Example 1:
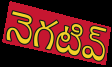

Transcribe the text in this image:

నెగటివ్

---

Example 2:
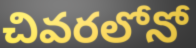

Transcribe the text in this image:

చివరలోనో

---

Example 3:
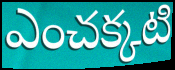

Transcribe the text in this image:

ఎంచక్కటి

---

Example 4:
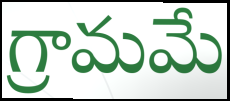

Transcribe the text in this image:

గ్రామమే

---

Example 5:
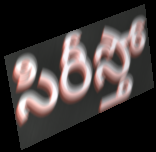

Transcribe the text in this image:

సిరీస్తో